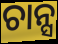
ଚାନ୍ସ